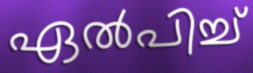
ഏൽപിച്ച്